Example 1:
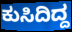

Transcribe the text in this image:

ಕುಸಿದಿದ್ದ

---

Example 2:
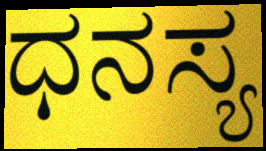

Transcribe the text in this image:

ಧನಸ್ಯ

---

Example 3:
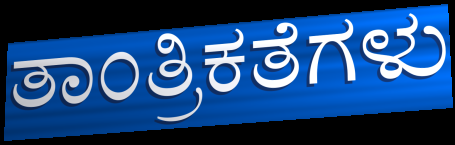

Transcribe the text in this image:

ತಾಂತ್ರಿಕತೆಗಳು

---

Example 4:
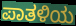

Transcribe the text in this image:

ಪಾತಳಿಯ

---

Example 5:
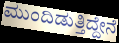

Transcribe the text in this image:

ಮುಂದಿಡುತ್ತಿದ್ದೇನೆ